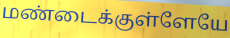
மண்டைக்குள்ளேயே